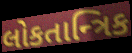
લોકતાન્ત્રિક